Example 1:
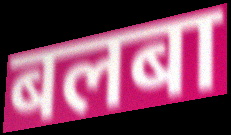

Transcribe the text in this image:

बलबा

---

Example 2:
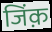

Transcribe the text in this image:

जिंक़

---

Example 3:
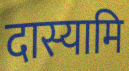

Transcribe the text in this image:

दास्यामि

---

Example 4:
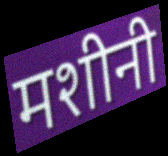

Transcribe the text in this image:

मशीनी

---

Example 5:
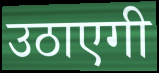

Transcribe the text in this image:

उठाएगी